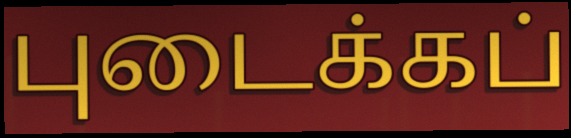
புடைக்கப்